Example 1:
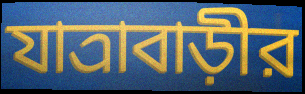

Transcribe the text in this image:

যাত্রাবাড়ীর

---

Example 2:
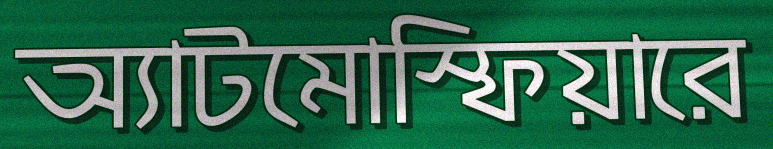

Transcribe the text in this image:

অ্যাটমোস্ফিয়ারে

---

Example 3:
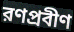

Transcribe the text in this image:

রণপ্রবীণ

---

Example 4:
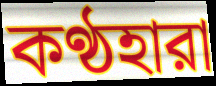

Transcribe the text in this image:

কণ্ঠহারা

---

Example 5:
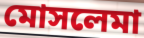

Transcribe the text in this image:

মোসলেমা